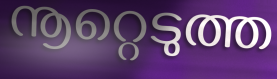
നൂറ്റെടുത്ത